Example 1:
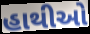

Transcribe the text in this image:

હાથીઓ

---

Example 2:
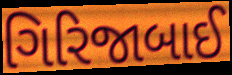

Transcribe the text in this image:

ગિરિજાબાઈ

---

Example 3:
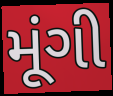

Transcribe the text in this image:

મૂંગી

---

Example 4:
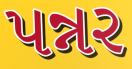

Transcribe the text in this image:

પન્નર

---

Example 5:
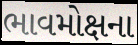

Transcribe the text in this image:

ભાવમોક્ષના